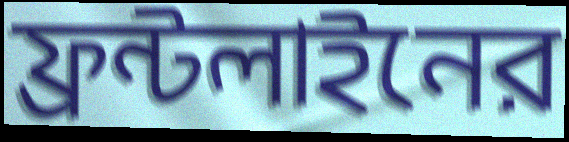
ফ্রন্টলাইনের